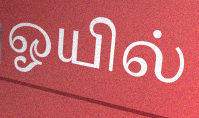
ஓயில்